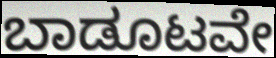
ಬಾಡೂಟವೇ